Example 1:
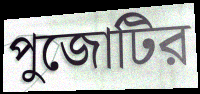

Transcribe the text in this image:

পুজোটির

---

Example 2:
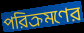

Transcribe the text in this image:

পরিক্রমণের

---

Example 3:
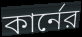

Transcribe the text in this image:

কার্নের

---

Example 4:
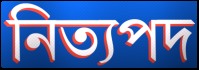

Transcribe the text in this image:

নিত্যপদ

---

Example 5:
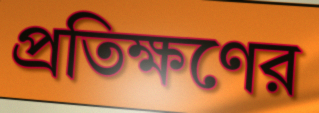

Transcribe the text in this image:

প্রতিক্ষণের